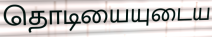
தொடியையுடைய